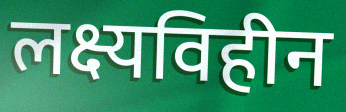
लक्ष्यविहीन